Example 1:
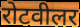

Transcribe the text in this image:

रोटवीलर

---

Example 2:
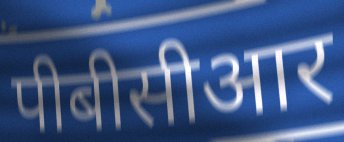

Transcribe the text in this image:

पीबीसीआर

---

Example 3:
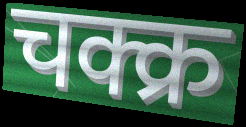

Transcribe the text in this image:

चक्क्र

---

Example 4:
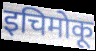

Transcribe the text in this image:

इचिमोकू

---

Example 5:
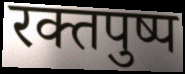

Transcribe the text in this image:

रक्तपुष्प